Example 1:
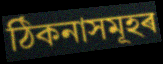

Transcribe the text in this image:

ঠিকনাসমূহৰ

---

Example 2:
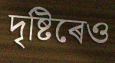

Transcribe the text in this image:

দৃষ্টিৰেও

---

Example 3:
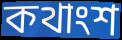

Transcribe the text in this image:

কথাংশ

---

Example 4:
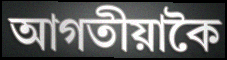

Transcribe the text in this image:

আগতীয়াকৈ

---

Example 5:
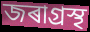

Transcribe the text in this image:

জৰাগ্ৰস্থ